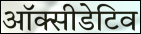
ऑक्सीडेटिव